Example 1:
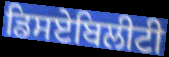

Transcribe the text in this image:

ਡਿਸਏਬਿਲੀਟੀ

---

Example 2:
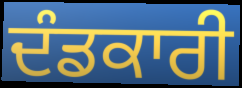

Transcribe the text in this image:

ਦੰਡਕਾਰੀ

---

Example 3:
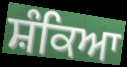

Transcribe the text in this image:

ਸ਼ੰਕਿਆ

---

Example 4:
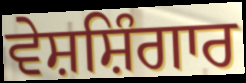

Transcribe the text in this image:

ਵੇਸ਼ਸ਼ਿੰਗਾਰ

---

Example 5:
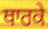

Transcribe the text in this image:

ਥਾਰਕੇ